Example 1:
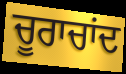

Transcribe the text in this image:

ਚੂਰਾਚਾਂਦ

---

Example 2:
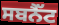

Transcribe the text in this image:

ਸਬਨੈੱਟ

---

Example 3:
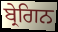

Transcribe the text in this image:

ਬ੍ਰੇਗਿਨ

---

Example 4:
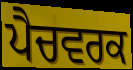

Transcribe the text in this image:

ਪੈਚਵਰਕ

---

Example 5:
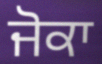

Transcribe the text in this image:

ਜੋਕਾ